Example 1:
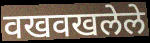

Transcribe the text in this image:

वखवखलेले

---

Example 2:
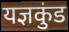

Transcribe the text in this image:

यज्ञकुंड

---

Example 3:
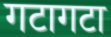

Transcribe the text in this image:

गटागटा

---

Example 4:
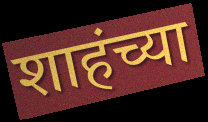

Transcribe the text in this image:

शाहंच्या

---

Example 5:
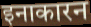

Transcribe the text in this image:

इनाकारन